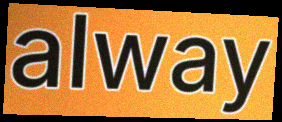
alway